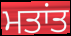
ਮਤਾਂਤ